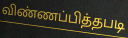
விண்ணப்பித்தபடி